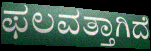
ಫಲವತ್ತಾಗಿದೆ